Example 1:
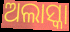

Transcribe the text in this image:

ଅଲାସ୍କା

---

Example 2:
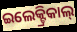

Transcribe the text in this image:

ଇଲେକ୍ଟ୍ରିକାଲ୍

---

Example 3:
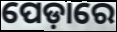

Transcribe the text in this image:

ପେଡ଼ାରେ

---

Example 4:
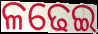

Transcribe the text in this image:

ଳଢେଇ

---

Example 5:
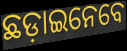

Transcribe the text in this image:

ଛଡ଼ାଇନେବେ